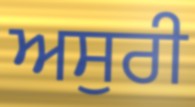
ਅਸੁਰੀ